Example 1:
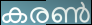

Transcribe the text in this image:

കരൺ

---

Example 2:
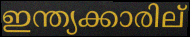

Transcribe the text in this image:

ഇന്ത്യക്കാരില്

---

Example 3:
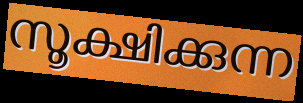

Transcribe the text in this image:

സൂക്ഷിക്കുന്ന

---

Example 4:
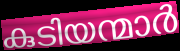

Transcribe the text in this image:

കുടിയന്മാർ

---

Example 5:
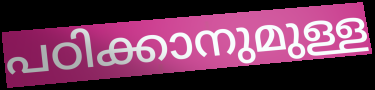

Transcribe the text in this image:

പഠിക്കാനുമുള്ള